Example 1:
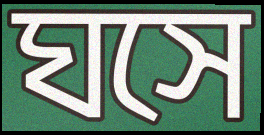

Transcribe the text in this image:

ঘসে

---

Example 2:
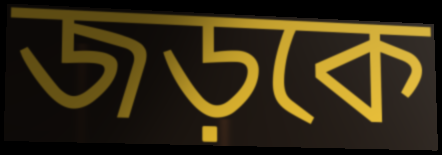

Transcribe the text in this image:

জড়কে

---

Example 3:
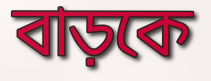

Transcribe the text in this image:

বাড়কে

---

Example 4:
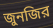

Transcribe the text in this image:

জুনজির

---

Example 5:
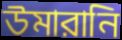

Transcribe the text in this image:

উমারানি